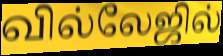
வில்லேஜில்